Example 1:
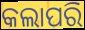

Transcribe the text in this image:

କଲାପରି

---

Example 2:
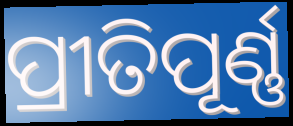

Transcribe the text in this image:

ପ୍ରୀତିପୂର୍ଣ୍ଣ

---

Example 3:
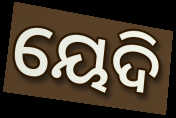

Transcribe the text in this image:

ୟେଦି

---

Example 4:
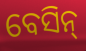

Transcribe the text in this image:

ବେସିନ୍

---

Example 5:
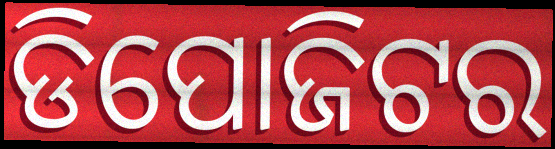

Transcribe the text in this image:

ଡିପୋଜିଟର